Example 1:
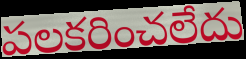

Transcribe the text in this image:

పలకరించలేదు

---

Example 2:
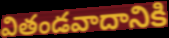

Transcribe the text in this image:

వితండవాదానికి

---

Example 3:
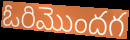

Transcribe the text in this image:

ఓరిమొందగ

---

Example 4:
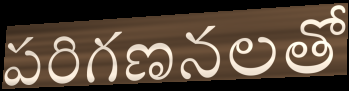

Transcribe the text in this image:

పరిగణనలతో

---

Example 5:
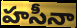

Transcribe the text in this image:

హసీనా